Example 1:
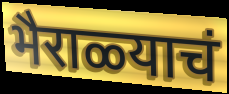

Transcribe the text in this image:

भैराळ्याचं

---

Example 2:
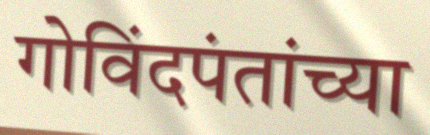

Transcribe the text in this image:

गोविंदपंतांच्या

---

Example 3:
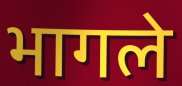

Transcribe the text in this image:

भागले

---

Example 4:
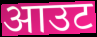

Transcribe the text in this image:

आउट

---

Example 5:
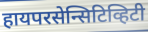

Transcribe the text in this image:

हायपरसेन्सिटिव्हिटी